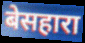
बेसहारा